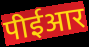
पीईआर